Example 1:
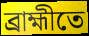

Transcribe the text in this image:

ব্রাহ্মীতে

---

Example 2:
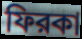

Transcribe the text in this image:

ফিরকা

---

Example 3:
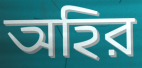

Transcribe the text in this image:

অহির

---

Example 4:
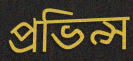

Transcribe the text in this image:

প্রভিন্স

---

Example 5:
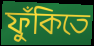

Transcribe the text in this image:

ফুঁকিতে